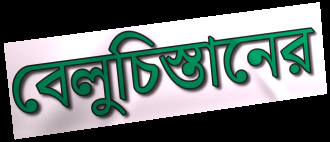
বেলুচিস্তানের